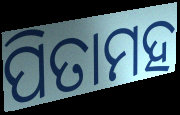
ପିତାମହ